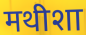
मथीशा